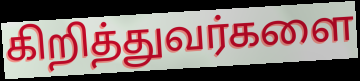
கிறித்துவர்களை